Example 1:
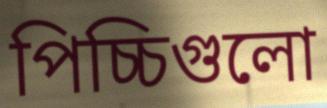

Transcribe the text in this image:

পিচ্চিগুলো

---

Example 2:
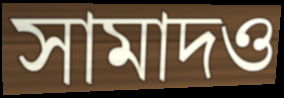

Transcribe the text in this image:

সামাদও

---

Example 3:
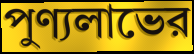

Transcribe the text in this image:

পুণ্যলাভের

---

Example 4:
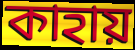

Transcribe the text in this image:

কাহায়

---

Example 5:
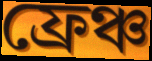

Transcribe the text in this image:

ফ্রেঞ্চ